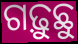
ଗଢ଼ୁଛୁ